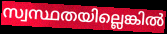
സ്വസ്ഥതയില്ലെങ്കിൽ